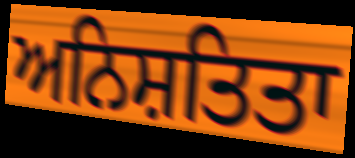
ਅਨਿਸ਼ਤਿਤਾ